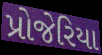
પ્રોજેરિયા